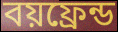
বয়ফ্রেন্ড